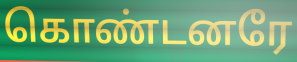
கொண்டனரே